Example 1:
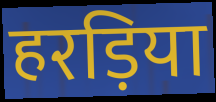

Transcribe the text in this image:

हरड़िया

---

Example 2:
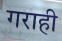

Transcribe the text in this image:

गराही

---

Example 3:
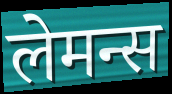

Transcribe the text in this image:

लेमन्स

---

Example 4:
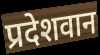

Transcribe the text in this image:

प्रदेशवान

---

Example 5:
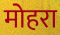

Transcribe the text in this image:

मोहरा